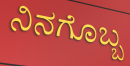
ನಿನಗೊಬ್ಬ